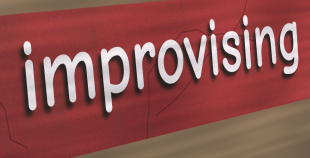
improvising